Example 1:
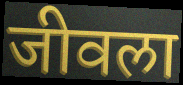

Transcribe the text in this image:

जीवला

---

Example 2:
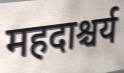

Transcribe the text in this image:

महदाश्चर्य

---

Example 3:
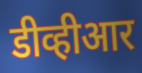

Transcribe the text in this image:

डीव्हीआर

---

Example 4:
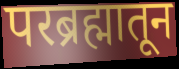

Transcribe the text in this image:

परब्रह्मातून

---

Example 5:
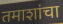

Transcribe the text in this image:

तमाशांचा